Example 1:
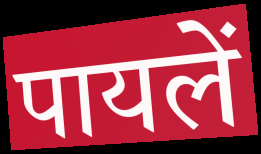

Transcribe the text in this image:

पायलें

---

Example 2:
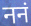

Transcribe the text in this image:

ननं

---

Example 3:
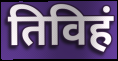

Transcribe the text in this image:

तिविहं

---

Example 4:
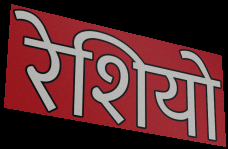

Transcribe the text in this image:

रेशियो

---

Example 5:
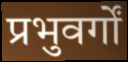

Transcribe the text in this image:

प्रभुवर्गों